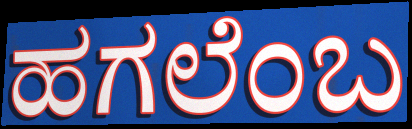
ಹಗಲೆಂಬ